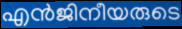
എൻജിനീയരുടെ